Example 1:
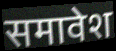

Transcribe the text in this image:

समावेश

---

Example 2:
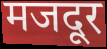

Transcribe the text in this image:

मजदूर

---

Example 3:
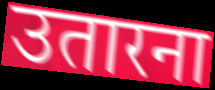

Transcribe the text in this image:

उतारना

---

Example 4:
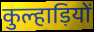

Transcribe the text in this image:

कुल्हाड़ियों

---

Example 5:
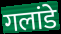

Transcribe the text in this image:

गलांडे